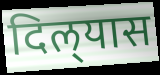
दिल्यास